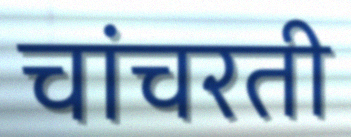
चांचरती